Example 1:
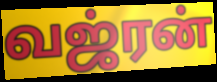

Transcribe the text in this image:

வஜ்ரன்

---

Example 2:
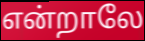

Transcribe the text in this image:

என்றாலே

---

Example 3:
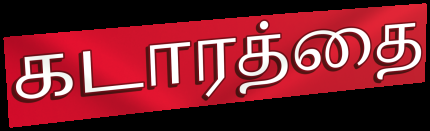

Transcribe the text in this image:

கடாரத்தை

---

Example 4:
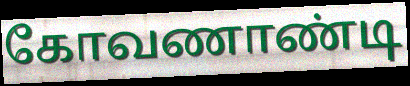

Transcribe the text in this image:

கோவணாண்டி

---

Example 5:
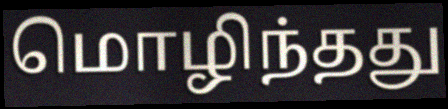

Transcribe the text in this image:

மொழிந்தது